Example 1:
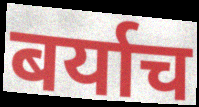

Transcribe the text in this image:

बर्याच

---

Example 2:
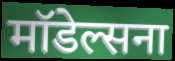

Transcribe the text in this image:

मॉडेल्सना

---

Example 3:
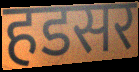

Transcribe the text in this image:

हडसर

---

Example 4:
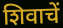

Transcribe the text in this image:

शिवाचें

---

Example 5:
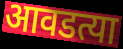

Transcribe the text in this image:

आवडत्या